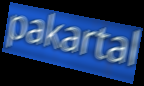
pakartal